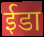
ईडा